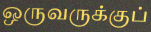
ஒருவருக்குப்